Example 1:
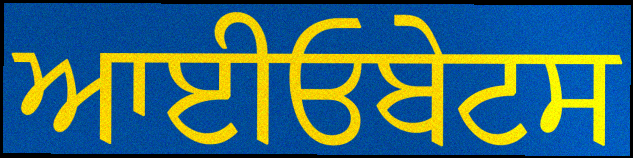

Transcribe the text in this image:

ਆਈਓਬੇਟਸ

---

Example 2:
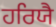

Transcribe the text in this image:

ਹਰਿਯੈ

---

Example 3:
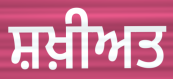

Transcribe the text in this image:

ਸ਼ਖ਼ੀਅਤ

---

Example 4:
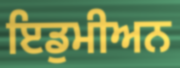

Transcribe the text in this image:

ਇਡੁਮੀਅਨ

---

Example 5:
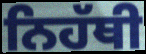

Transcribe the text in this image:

ਨਿਹੱਥੀ